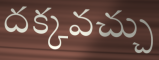
దక్కవచ్చు